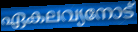
ഏകലവ്യനോട്